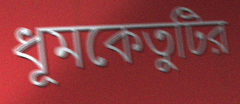
ধূমকেতুটির